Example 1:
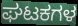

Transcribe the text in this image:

ಘಟಕಗಳ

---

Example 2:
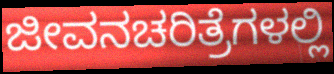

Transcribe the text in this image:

ಜೀವನಚರಿತ್ರೆಗಳಲ್ಲಿ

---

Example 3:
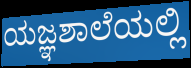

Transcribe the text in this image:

ಯಜ್ಞಶಾಲೆಯಲ್ಲಿ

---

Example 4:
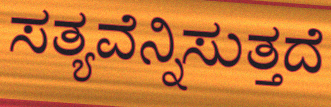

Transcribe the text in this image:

ಸತ್ಯವೆನ್ನಿಸುತ್ತದೆ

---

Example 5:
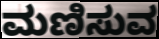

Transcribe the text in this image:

ಮಣಿಸುವ